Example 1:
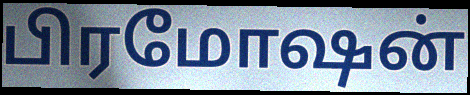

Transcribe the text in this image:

பிரமோஷன்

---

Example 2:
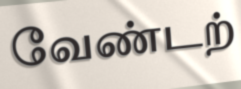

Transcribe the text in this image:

வேண்டற்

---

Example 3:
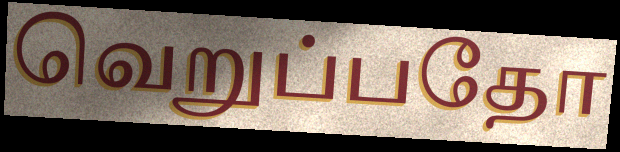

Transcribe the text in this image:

வெறுப்பதோ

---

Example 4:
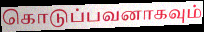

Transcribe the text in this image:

கொடுப்பவனாகவும்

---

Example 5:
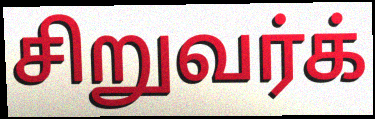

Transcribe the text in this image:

சிறுவர்க்